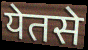
येतसे